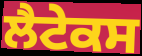
ਲੈਟੇਕਸ